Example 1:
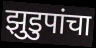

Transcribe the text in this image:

झुडुपांचा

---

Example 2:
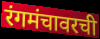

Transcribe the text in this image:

रंगमंचावरची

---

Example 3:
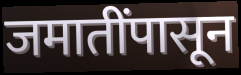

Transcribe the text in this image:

जमातींपासून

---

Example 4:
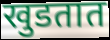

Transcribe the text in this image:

खुडतात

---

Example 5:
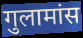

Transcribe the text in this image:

गुलामांस